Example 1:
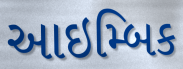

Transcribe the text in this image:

આઇમ્બિક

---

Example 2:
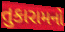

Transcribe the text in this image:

તુકારામનો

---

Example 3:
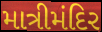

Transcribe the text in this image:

માત્રીમંદિર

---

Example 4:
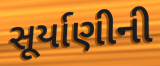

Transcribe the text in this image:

સૂર્યાણીની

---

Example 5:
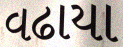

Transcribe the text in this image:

વઢાયા